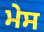
ਮੇਸ